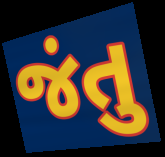
જંતુ